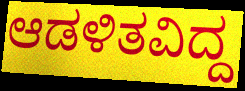
ಆಡಳಿತವಿದ್ದ